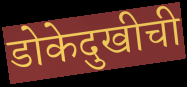
डोकेदुखीची